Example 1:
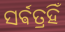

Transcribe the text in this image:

ସର୍ଵତ୍ରହିଁ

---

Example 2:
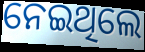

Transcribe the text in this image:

ନେଇଥିଲେ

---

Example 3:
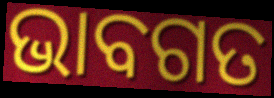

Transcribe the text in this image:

ଭାବଗତ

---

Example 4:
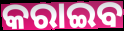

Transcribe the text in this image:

କରାଇବ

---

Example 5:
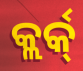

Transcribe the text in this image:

କ୍ଲର୍କ୍